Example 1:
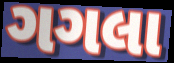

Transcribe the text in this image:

ગગલા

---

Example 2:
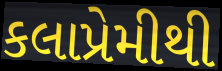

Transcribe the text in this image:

કલાપ્રેમીથી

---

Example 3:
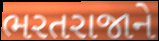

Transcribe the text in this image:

ભરતરાજાને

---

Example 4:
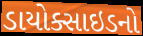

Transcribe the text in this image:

ડાયોક્સાઇડનો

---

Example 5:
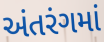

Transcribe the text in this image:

અંતરંગમાં